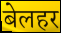
बेलहर